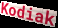
Kodiak